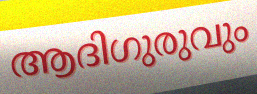
ആദിഗുരുവും